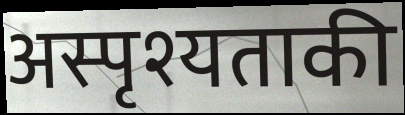
अस्पृश्यताकी